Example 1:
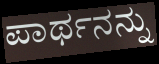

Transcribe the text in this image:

ಪಾರ್ಥನನ್ನು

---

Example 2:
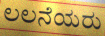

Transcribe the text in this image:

ಲಲನೆಯರು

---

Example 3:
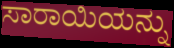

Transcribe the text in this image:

ಸಾರಾಯಿಯನ್ನು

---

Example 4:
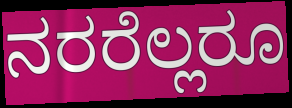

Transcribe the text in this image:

ನರರೆಲ್ಲರೂ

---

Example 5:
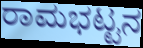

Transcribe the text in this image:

ರಾಮಭಟ್ಟನ